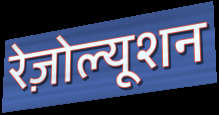
रेज़ोल्यूशन